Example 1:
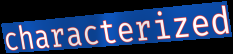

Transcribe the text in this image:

characterized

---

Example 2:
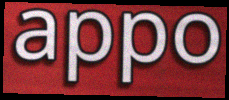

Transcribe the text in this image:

appo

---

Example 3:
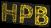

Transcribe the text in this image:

HPB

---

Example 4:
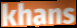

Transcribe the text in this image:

khans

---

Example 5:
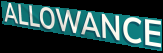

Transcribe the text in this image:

ALLOWANCE